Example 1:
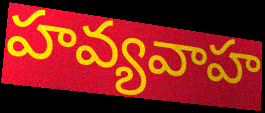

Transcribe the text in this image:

హవ్యవాహ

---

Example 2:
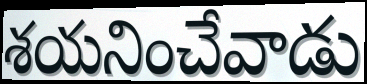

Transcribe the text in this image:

శయనించేవాడు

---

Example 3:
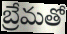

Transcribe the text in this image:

బ్రేమతో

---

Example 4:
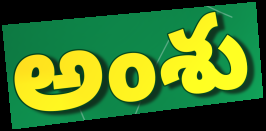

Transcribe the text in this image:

అంశు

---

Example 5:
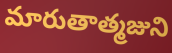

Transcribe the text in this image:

మారుతాత్మజుని